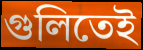
গুলিতেই